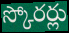
స్కోరర్లు